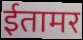
ईतामर